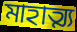
মাহাত্ম্য